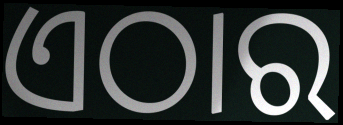
ଏଠାର